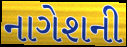
નાગેશની